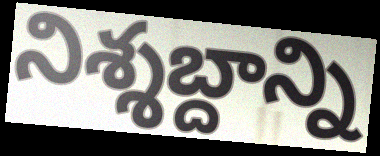
నిశ్శబ్దాన్ని